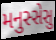
મનુસ્સેસુ